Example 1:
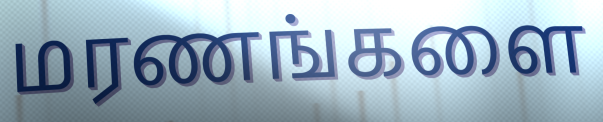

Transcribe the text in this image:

மரணங்களை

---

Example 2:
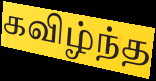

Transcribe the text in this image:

கவிழ்ந்த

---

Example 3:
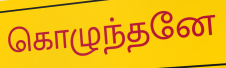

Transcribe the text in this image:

கொழுந்தனே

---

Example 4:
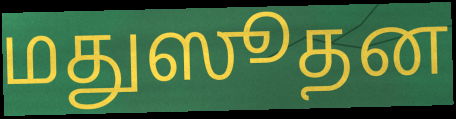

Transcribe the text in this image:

மதுஸூதன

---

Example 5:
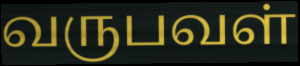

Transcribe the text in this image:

வருபவள்